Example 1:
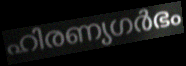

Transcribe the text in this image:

ഹിരണ്യഗർഭം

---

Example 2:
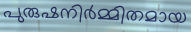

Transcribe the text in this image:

പുരുഷനിർമ്മിതമായ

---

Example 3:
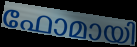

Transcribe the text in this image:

ഫോമായി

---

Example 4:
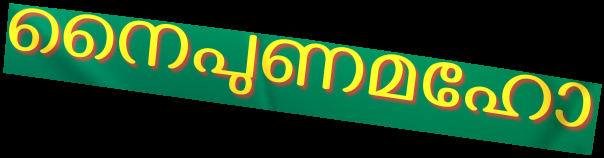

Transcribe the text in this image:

നൈപുണമഹോ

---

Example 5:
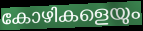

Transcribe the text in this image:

കോഴികളെയും